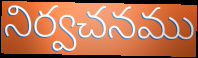
నిర్వచనము